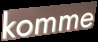
komme